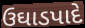
ઉઘાડપાદે